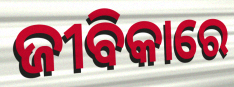
ଜୀବିକାରେ